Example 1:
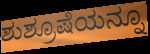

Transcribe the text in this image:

ಶುಶ್ರೂಷೆಯನ್ನೂ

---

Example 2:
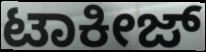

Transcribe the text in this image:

ಟಾಕೀಜ್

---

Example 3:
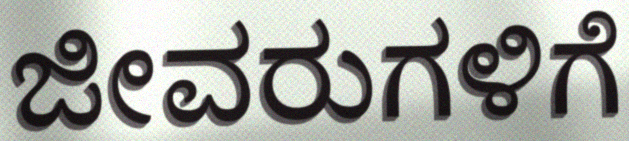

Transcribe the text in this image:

ಜೀವರುಗಳಿಗೆ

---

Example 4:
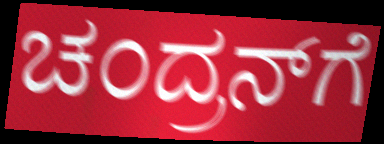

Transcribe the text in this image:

ಚಂದ್ರನ್‌ಗೆ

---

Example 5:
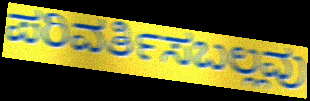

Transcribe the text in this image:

ಪರಿವರ್ತಿಸಬಲ್ಲವು